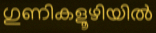
ഗുണികളൂഴിയിൽ